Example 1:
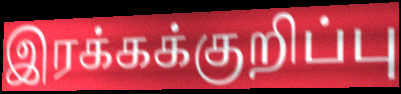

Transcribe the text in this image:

இரக்கக்குறிப்பு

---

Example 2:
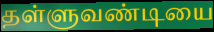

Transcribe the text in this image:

தள்ளுவண்டியை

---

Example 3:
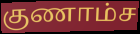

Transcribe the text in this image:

குணாம்ச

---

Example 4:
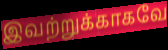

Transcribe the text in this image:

இவற்றுக்காகவே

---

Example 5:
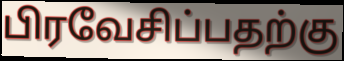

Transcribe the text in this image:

பிரவேசிப்பதற்கு